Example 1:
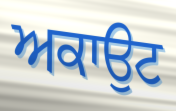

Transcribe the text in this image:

ਅਕਾਉਟ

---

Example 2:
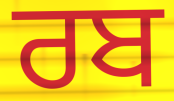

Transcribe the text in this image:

ਰਬ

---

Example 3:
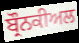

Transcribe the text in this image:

ਬ੍ਰੌਨਕੀਅਲ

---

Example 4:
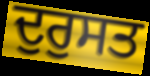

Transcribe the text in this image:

ਦੁਰੁਸਤ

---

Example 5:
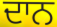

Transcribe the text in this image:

ਦਾਨ